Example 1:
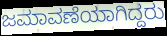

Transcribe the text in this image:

ಜಮಾವಣೆಯಾಗಿದ್ದರು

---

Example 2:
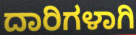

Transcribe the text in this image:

ದಾರಿಗಳಾಗಿ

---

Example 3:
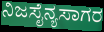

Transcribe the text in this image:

ನಿಜಸೈನ್ಯಸಾಗರ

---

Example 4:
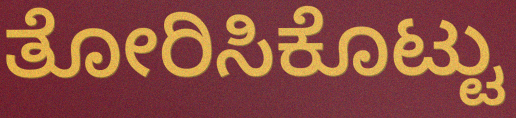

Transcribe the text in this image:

ತೋರಿಸಿಕೊಟ್ಟು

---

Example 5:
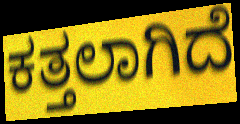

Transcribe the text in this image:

ಕತ್ತಲಾಗಿದೆ